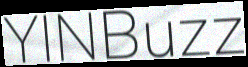
YINBuzz